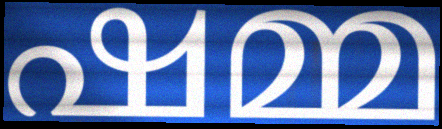
ഷമ്മ